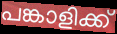
പങ്കാളിക്ക്